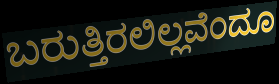
ಬರುತ್ತಿರಲಿಲ್ಲವೆಂದೂ